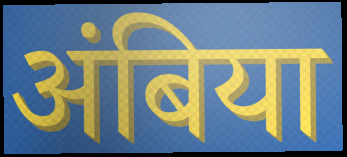
अंबिया